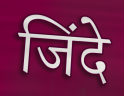
जिंदे